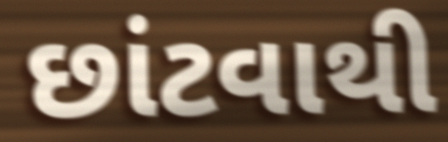
છાંટવાથી